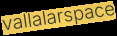
vallalarspace